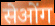
सेओंग